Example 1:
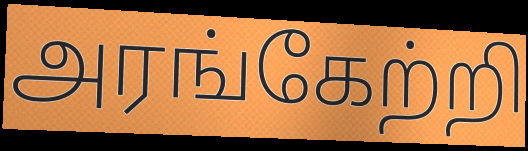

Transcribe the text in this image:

அரங்கேற்றி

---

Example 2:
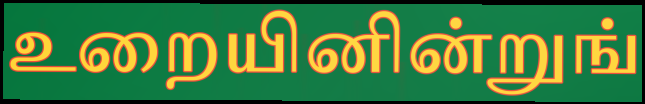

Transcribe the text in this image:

உறையினின்றுங்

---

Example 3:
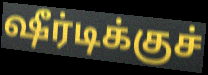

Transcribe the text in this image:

ஷீர்டிக்குச்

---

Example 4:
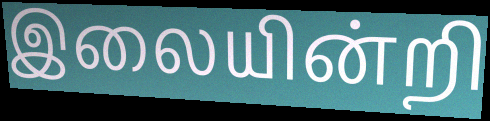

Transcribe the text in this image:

இலையின்றி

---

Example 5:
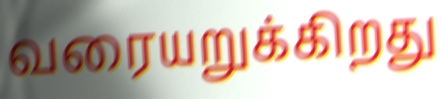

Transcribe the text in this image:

வரையறுக்கிறது